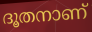
ദൂതനാണ്